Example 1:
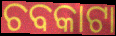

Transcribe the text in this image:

ଚବକାଟା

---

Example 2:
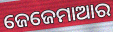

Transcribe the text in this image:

ଜେଜେମାଆର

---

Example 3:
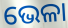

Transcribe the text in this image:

ଭେଳା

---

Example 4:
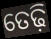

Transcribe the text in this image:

ତେଢ଼ି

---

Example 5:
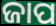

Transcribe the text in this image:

ଜାପ